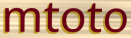
mtoto